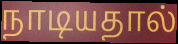
நாடியதால்